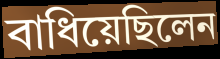
বাধিয়েছিলেন